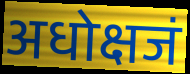
अधोक्षजं